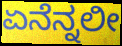
ಏನೆನ್ನಲೀ